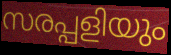
സരപ്പളിയും